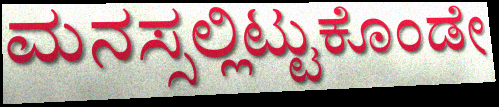
ಮನಸ್ಸಲ್ಲಿಟ್ಟುಕೊಂಡೇ